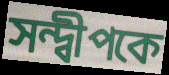
সন্দ্বীপকে